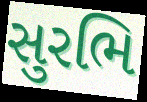
સુરભિ